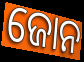
ଜୋନ